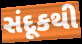
સંદૂકથી